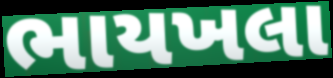
ભાયખલા